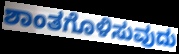
ಶಾಂತಗೊಳಿಸುವುದು